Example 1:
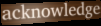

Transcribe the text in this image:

acknowledge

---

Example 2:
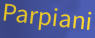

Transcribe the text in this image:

Parpiani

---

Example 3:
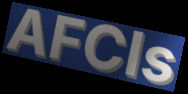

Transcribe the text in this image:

AFCIs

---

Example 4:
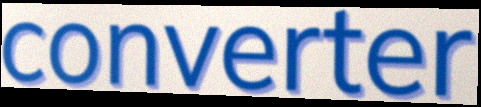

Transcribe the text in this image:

converter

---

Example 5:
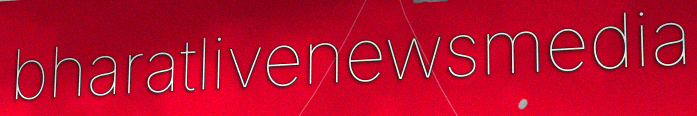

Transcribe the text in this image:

bharatlivenewsmedia